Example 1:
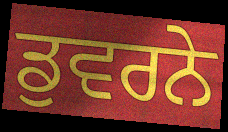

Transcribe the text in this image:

ਡੁਵਰਨੇ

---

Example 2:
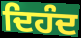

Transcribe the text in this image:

ਦਿਹੰਦ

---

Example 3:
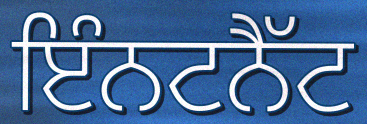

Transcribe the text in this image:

ਇੰਨਟਨੈੱਟ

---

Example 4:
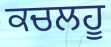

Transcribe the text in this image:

ਕਚਲਹੂ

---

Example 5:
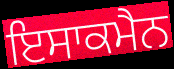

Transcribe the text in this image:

ਇਸਾਕਮੈਨ